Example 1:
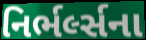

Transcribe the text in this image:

નિર્ભર્લ્સના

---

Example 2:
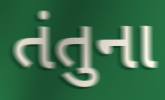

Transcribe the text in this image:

તંતુના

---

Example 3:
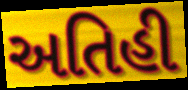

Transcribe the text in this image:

અતિહી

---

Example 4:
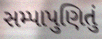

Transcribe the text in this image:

સમ્પાપુણિતું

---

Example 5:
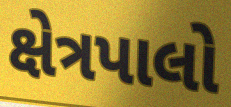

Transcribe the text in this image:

ક્ષેત્રપાલો